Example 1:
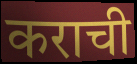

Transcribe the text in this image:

कराची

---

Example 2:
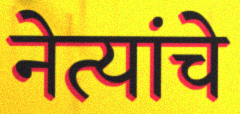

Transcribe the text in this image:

नेत्यांचे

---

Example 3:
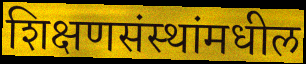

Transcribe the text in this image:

शिक्षणसंस्थांमधील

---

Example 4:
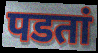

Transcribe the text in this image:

पडतां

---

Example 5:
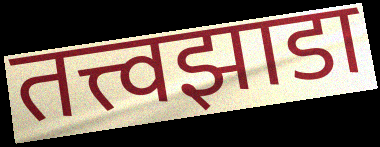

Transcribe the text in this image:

तत्त्वझाडा